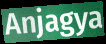
Anjagya